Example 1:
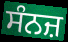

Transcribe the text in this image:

ਸੰਨਜ਼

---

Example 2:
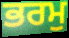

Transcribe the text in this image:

ਭਰਮੁ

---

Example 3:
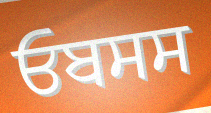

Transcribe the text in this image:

ਓਬਸਸ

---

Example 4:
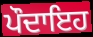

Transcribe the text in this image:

ਪੌਦਾਇਹ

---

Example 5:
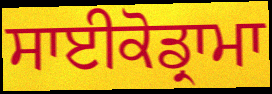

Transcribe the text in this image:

ਸਾਈਕੋਡ੍ਰਾਮਾ